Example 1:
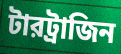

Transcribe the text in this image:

টারট্রাজিন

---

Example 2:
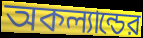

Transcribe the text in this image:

অকল্যান্ডের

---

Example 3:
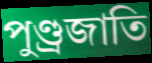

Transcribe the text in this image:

পুণ্ড্রজাতি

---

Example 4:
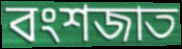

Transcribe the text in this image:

বংশজাত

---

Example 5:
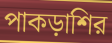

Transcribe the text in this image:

পাকড়াশির